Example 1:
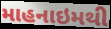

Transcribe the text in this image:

માહનાઇમથી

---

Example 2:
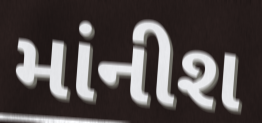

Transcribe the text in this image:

માંનીશ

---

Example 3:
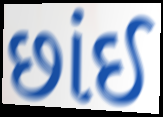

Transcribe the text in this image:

છાંઈ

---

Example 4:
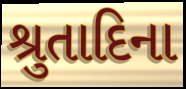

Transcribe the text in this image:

શ્રુતાદિના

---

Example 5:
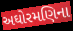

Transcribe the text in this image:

અઘોરમણિના